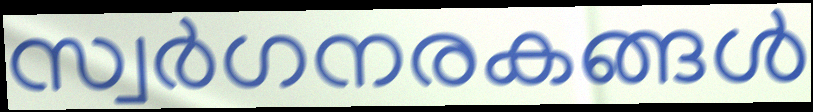
സ്വർഗനരകങ്ങൾ